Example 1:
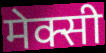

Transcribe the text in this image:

मेक्सी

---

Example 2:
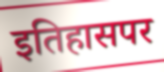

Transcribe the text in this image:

इतिहासपर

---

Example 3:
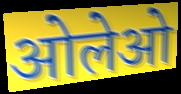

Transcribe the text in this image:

ओलेओ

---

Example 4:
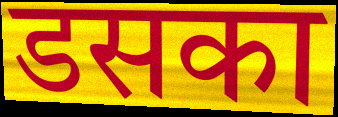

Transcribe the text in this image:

डसका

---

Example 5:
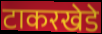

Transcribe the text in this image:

टाकरखेडे